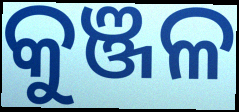
କୁଞ୍ଜଳ